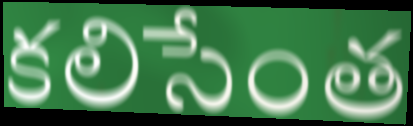
కలిసేంత